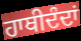
ਹਾਥੀਦੰਦਾਂ